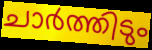
ചാർത്തിടും